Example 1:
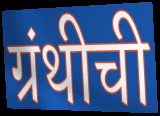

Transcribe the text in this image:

ग्रंथीची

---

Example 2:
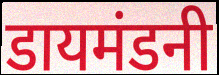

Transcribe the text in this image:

डायमंडनी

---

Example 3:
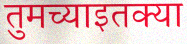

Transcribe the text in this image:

तुमच्याइतक्या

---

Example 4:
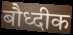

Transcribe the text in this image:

बौध्दीक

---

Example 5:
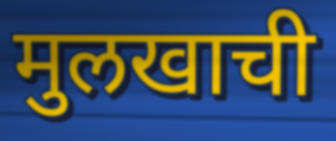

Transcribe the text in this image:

मुलखाची